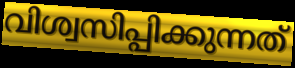
വിശ്വസിപ്പിക്കുന്നത്